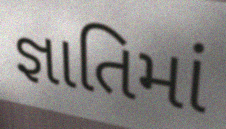
જ્ઞાતિમાં